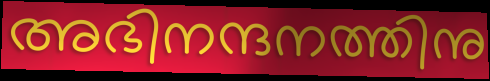
അഭിനന്ദനത്തിനു